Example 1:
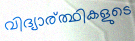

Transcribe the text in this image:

വിദ്യാര്ത്ഥികളുടെ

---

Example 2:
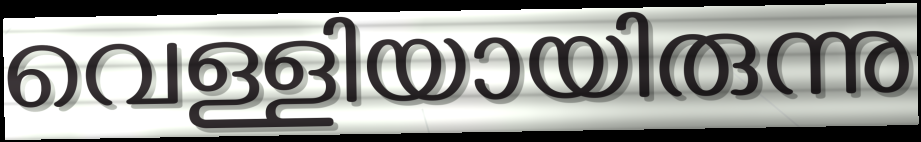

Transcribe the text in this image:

വെള്ളിയായിരുന്നു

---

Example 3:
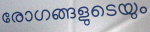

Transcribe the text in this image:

രോഗങ്ങളുടെയും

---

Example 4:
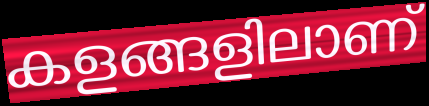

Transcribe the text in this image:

കളങ്ങളിലാണ്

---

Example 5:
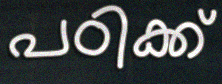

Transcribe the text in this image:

പഠിക്ക്